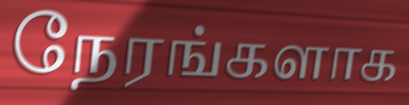
நேரங்களாக